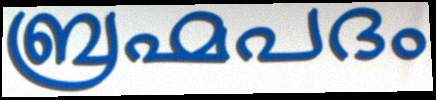
ബ്രഹ്മപദം